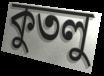
কুতলু